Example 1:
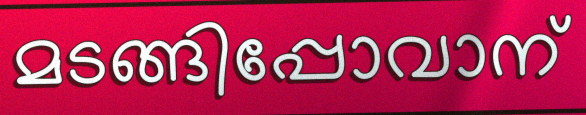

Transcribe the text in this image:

മടങ്ങിപ്പോവാന്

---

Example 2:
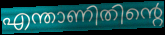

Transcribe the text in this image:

എന്താണിതിന്റെ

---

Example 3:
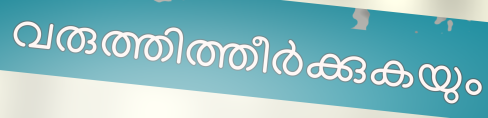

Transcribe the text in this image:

വരുത്തിത്തീർക്കുകയും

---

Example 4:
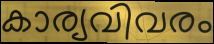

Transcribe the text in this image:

കാര്യവിവരം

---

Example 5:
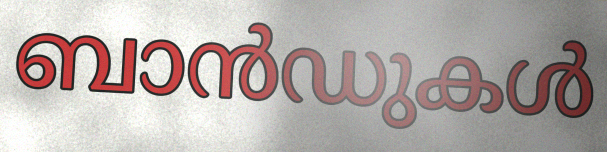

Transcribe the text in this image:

ബാൻഡുകൾ